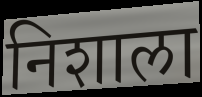
निशाला